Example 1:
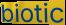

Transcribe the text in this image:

biotic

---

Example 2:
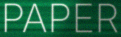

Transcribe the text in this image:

PAPER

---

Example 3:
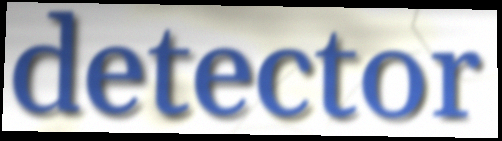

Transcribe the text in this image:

detector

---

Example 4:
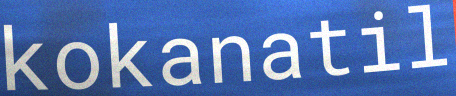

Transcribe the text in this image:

kokanatil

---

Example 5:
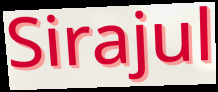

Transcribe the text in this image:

Sirajul